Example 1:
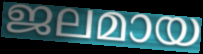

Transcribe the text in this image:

ജലമായ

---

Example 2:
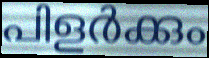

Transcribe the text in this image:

പിളർക്കും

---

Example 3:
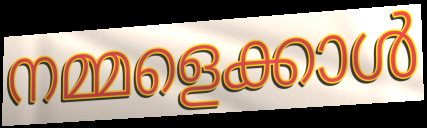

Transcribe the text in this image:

നമ്മളെക്കാൾ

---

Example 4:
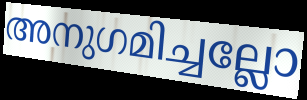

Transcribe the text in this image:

അനുഗമിച്ചല്ലോ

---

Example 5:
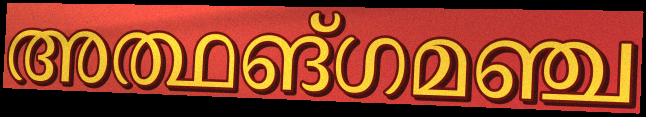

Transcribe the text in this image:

അത്ഥങ്ഗമഞ്ച